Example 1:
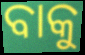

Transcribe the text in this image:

ବାକୁ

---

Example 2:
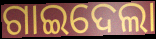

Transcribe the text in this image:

ଗାଇଦେଲା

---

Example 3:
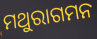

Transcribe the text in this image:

ମଥୁରାଗମନ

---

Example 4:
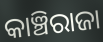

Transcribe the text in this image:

କାଞ୍ଚିରାଜା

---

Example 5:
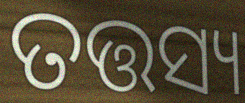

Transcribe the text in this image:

ତତ୍ତସ୍ୟ